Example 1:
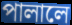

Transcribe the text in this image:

পালালে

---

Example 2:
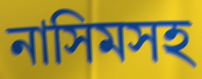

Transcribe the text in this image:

নাসিমসহ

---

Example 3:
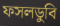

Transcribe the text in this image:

ফসলডুবি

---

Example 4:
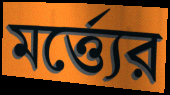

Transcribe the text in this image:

মর্ত্ত্যের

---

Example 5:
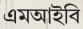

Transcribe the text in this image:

এমআইবি